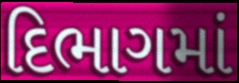
દિભાગમાં